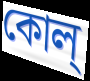
কোল্